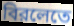
বিরলেতে